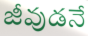
జీవుడనే